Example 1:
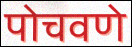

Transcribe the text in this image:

पोचवणे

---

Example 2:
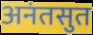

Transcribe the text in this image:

अनंतसुत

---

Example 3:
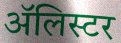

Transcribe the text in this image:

ॲलिस्टर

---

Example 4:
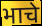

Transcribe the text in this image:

भाचे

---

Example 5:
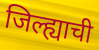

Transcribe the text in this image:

जिल्ह्याची